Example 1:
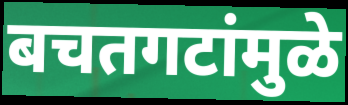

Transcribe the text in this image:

बचतगटांमुळे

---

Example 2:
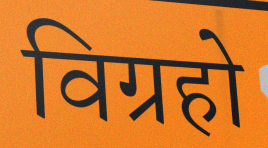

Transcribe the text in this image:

विग्रहो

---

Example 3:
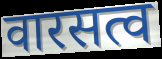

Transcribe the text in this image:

वारसत्व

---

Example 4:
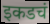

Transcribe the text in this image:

इकडचं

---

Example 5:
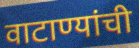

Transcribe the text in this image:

वाटाण्यांची